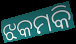
ଝକମକି